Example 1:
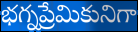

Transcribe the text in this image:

భగ్నప్రేమికునిగా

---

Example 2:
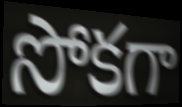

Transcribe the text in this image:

సోకగా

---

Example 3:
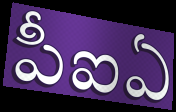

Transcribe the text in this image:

పీఐఏ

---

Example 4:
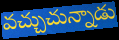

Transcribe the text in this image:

వచ్చుచున్నాడు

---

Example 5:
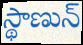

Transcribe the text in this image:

స్థాణున్